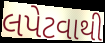
લપેટવાથી